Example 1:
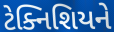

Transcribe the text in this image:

ટેક્નિશિયને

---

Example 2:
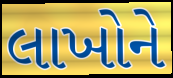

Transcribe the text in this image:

લાખોને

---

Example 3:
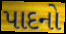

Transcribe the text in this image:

પાદનો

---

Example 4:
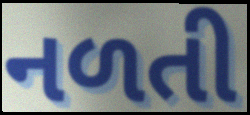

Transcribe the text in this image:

નળતી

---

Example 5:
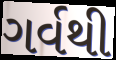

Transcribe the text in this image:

ગર્વથી